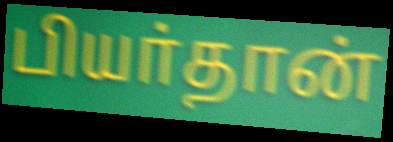
பியர்தான்